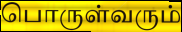
பொருள்வரும்